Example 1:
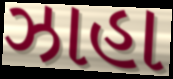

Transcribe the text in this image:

ઝાહા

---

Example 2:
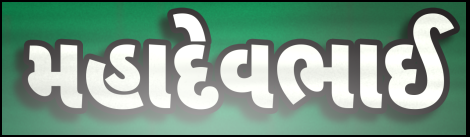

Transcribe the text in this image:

મહાદેવભાઈ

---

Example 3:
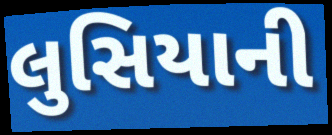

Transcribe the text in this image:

લુસિયાની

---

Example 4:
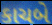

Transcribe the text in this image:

કાચબે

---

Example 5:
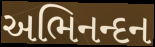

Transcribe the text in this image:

અભિનન્દન